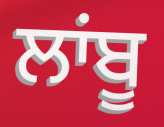
ਲਾਂਬੂ